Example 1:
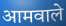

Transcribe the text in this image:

आमवाले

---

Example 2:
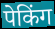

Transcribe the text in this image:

पेकिंग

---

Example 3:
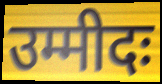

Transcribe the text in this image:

उम्मीदः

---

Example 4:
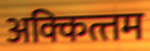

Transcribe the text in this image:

अक्‍कित्‍तम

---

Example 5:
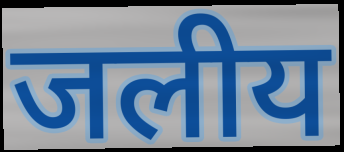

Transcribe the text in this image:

जलीय